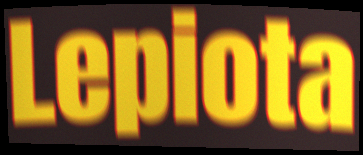
Lepiota